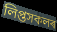
লিপ্তসকলৰ